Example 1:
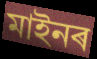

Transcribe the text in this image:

মাইনৰ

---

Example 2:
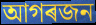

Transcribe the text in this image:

আগৰজন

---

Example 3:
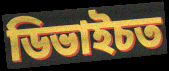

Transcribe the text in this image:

ডিভাইচত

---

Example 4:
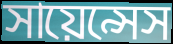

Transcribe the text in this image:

সায়েন্সেস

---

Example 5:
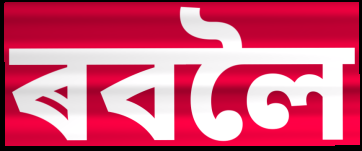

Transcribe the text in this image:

ৰবলৈ